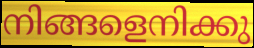
നിങ്ങളെനിക്കു